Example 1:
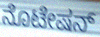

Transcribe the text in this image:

ನೊಟೇಷನ್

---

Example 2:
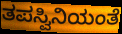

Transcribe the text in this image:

ತಪಸ್ವಿನಿಯಂತೆ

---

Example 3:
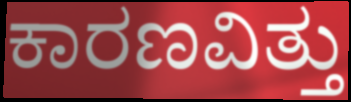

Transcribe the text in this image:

ಕಾರಣವಿತ್ತು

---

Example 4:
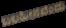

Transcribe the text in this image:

ಬಲಹೀನವೆಂದು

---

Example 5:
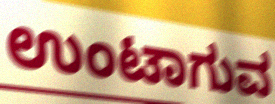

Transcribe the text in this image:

ಉಂಟಾಗುವ